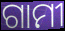
ଗାମୀ